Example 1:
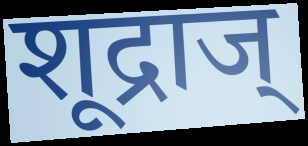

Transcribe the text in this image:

शूद्राज्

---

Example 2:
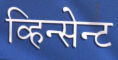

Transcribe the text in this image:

व्हिन्सेन्ट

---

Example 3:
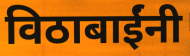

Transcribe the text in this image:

विठाबाईंनी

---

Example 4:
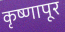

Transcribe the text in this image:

कृष्णापूर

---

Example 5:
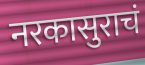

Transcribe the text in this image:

नरकासुराचं